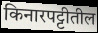
किनारपट्टीतील